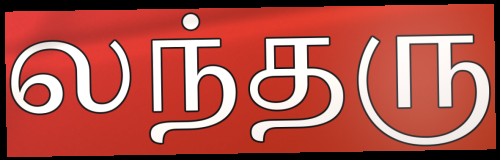
லந்தரு